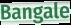
Bangale